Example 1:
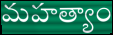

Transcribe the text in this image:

మహత్యాం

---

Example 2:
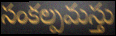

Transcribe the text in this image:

సంకల్పమస్తు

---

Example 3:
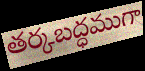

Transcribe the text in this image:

తర్కబద్ధముగా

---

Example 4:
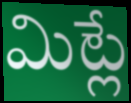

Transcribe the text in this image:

మిట్లే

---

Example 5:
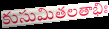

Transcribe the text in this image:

కుసుమితలతాభిః